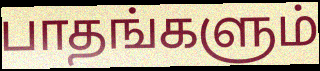
பாதங்களும்